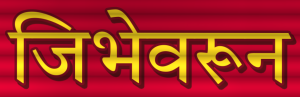
जिभेवरून